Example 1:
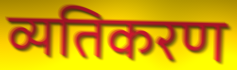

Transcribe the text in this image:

व्यतिकरण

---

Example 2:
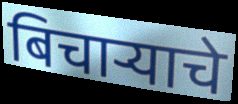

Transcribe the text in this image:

बिचाऱ्याचे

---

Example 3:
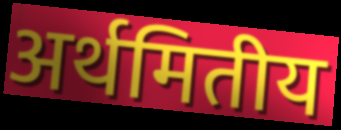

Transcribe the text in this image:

अर्थमितीय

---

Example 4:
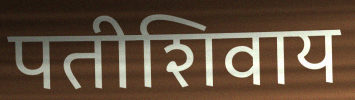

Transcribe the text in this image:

पतीशिवाय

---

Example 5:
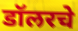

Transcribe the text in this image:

डॉलरचे